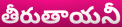
తీరుతాయనీ